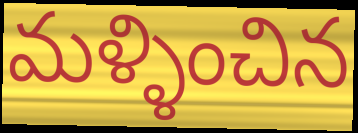
మళ్ళించిన